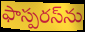
ఫాస్పరస్‌ను